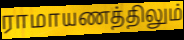
ராமாயணத்திலும்